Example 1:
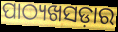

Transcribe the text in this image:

ପାଠ୍ୟଖସଡ଼ାର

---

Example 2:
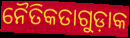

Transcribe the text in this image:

ନୈତିକତାଗୁଡ଼ାକ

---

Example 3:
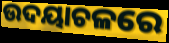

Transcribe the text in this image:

ଉଦୟାଚଳରେ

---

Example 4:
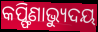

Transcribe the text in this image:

କପ୍ଫିଣାଭ୍ୟୁଦୟ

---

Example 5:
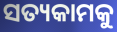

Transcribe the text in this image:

ସତ୍ୟକାମକୁ